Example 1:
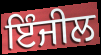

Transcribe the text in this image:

ਇੰਜੀਲ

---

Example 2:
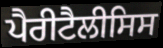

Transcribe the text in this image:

ਪੈਰੀਟੈਲੀਸਿਸ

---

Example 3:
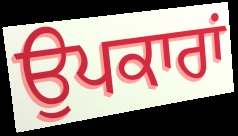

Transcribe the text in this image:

ਉਪਕਾਰਾਂ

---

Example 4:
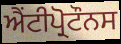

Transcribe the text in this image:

ਐਂਟੀਪ੍ਰੋਟੌਨਸ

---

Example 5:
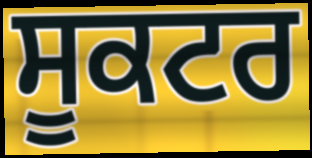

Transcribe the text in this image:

ਸੂਕਟਰ